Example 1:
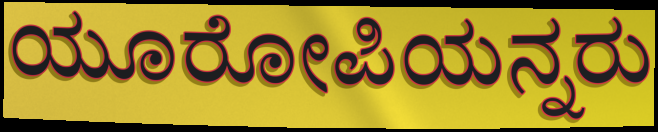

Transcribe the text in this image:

ಯೂರೋಪಿಯನ್ನರು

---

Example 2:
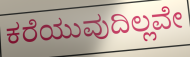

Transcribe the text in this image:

ಕರೆಯುವುದಿಲ್ಲವೇ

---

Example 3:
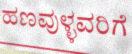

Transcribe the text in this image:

ಹಣವುಳ್ಳವರಿಗೆ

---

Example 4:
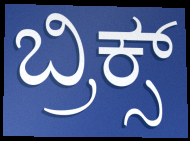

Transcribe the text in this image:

ಬ್ರಿಕ್ಸ್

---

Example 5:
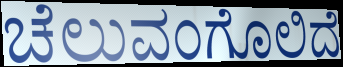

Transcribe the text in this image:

ಚೆಲುವಂಗೊಲಿದೆ